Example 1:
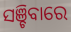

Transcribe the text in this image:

ସଞ୍ଚିବାରେ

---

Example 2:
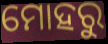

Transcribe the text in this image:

ମୋହରୁ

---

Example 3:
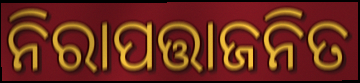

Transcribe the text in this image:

ନିରାପତ୍ତାଜନିତ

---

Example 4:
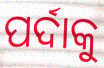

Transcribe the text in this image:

ପର୍ଦାକୁ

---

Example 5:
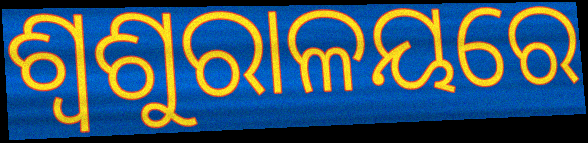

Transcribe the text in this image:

ଶ୍ୱଶୁରାଳୟରେ